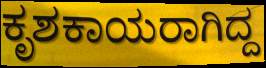
ಕೃಶಕಾಯರಾಗಿದ್ದ